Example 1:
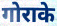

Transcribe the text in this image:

गोराके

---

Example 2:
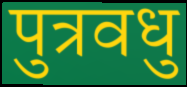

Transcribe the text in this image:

पुत्रवधु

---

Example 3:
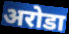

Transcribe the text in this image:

अरोडा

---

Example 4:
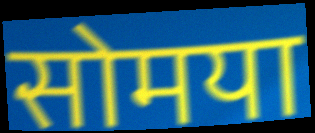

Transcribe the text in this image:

सोमया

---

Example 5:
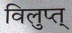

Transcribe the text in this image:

विलुप्त्